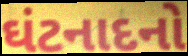
ઘંટનાદનો